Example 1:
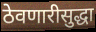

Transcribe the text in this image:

ठेवणारीसुद्धा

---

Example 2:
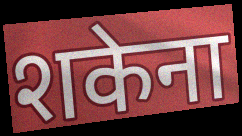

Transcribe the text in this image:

शकेना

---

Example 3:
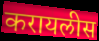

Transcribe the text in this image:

करायलीस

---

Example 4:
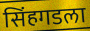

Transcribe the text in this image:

सिंहगडला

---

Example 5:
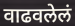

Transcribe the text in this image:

वाढवलेलं